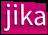
jika